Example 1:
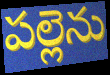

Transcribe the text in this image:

పల్లెను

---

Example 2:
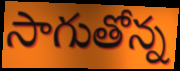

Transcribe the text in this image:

సాగుతోన్న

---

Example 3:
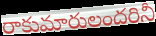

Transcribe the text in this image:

రాకుమారులందరినీ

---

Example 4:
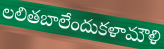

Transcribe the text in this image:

లలితబాలేందుకళామౌళి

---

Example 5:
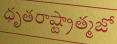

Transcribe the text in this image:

ధృతరాష్ట్రాత్మజో